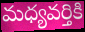
మధ్యవర్తికి